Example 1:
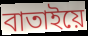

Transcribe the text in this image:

বাতাইয়ে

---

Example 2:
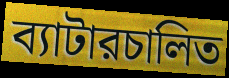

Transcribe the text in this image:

ব্যাটারচালিত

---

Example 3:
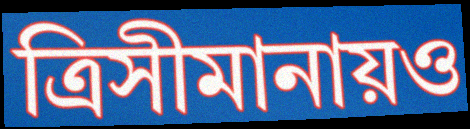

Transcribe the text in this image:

ত্রিসীমানায়ও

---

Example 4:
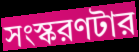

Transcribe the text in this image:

সংস্করণটার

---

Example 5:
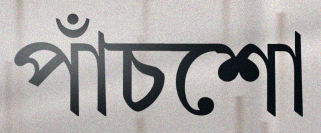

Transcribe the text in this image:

পাঁচশো